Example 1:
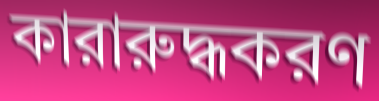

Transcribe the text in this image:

কারারুদ্ধকরণ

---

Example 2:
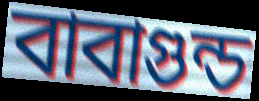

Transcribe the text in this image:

বাবাগুন্ড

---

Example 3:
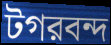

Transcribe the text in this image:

টগরবন্দ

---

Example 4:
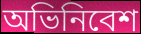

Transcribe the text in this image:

অভিনিবেশ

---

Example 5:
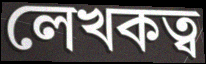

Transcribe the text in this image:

লেখকত্ব